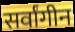
सर्वांगीन